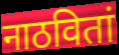
नाठवितां